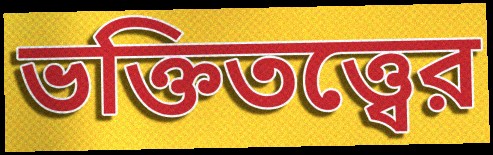
ভক্তিতত্ত্বের